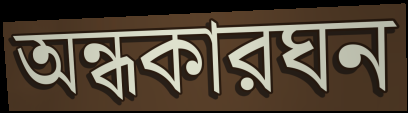
অন্ধকারঘন